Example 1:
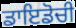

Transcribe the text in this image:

ਡਾਇਡੋਚੀ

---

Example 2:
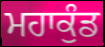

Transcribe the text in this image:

ਮਹਾਕੁੰਡ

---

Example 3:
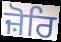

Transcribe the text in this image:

ਜ਼ੋਰਿ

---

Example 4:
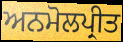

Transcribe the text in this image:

ਅਨਮੋਲਪ੍ਰੀਤ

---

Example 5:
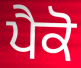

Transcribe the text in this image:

ਪੈਕੋ